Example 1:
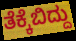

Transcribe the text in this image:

ತೆಕ್ಕೆಬಿದ್ದು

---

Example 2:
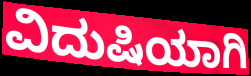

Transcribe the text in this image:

ವಿದುಷಿಯಾಗಿ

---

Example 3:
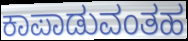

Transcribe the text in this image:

ಕಾಪಾಡುವಂತಹ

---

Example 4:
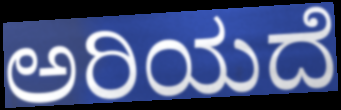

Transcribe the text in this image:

ಅರಿಯದೆ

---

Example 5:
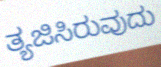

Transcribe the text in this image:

ತ್ಯಜಿಸಿರುವುದು